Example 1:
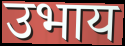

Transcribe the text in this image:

उभाय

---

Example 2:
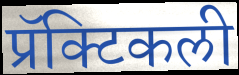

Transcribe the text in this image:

प्रॅक्टिकली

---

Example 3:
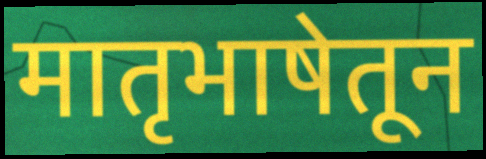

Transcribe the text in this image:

मातृभाषेतून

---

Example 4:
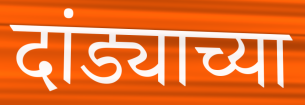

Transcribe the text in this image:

दांड्याच्या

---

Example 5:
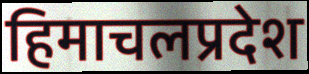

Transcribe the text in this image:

हिमाचलप्रदेश